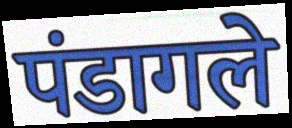
पंडागले